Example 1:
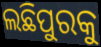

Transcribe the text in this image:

ଲଛିପୁରକୁ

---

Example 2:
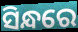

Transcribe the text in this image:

ସିନ୍ଧରେ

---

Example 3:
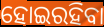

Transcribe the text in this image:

ହୋଇରହିବା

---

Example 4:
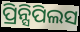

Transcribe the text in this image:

ପ୍ରିନ୍ସିପିଲସ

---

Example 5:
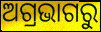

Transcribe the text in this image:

ଅଗ୍ରଭାଗରୁ